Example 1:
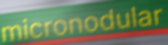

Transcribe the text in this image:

micronodular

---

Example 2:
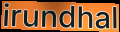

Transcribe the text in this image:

irundhal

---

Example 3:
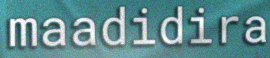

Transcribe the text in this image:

maadidira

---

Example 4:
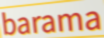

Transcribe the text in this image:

barama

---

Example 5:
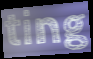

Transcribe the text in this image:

ting